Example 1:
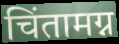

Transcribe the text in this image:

चिंतामग्न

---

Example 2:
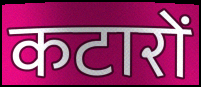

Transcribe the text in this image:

कटारों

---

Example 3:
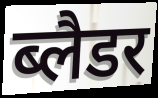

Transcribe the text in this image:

ब्लैडर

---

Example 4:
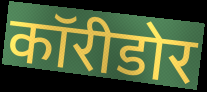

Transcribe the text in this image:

कॉरीडोर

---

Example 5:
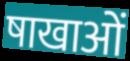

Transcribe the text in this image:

षाखाओं